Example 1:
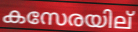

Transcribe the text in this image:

കസേരയില്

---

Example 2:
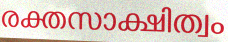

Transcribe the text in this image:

രക്തസാക്ഷിത്വം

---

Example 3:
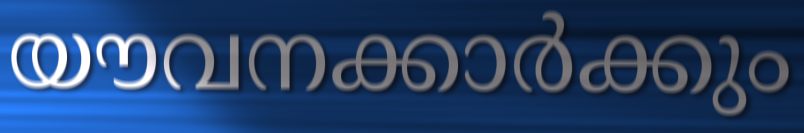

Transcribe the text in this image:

യൗവനക്കാർക്കും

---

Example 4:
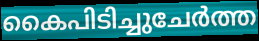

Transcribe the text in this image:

കൈപിടിച്ചുചേർത്ത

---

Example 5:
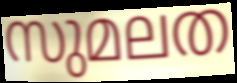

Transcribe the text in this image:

സുമലത